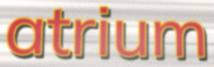
atrium